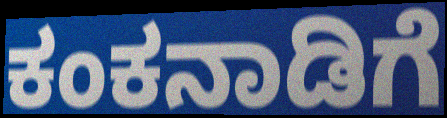
ಕಂಕನಾಡಿಗೆ